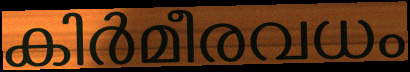
കിർമീരവധം